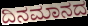
ದಿನಮಾನದ